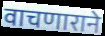
वाचणाराने